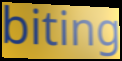
biting